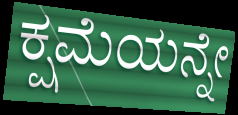
ಕ್ಷಮೆಯನ್ನೇ